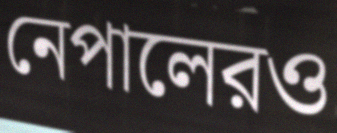
নেপালেরও